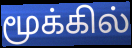
மூக்கில்